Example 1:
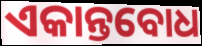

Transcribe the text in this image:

ଏକାନ୍ତବୋଧ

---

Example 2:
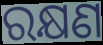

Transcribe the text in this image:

ରକ୍ଷଣ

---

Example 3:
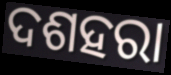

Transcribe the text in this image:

ଦଶହରା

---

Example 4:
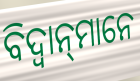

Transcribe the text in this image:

ବିଦ୍ୱାନ୍‌ମାନେ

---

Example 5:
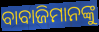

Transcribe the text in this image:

ବାବାଜିମାନଙ୍କୁ